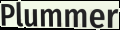
Plummer